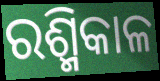
ରଶ୍ମିକାଳ